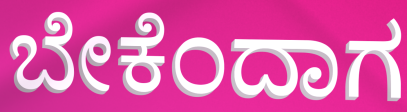
ಬೇಕೆಂದಾಗ